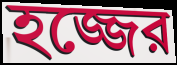
হজ্জের